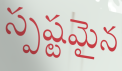
స్పష్టమైన